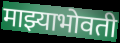
माझ्याभोवती